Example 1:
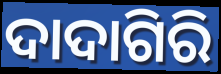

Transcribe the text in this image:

ଦାଦାଗିରି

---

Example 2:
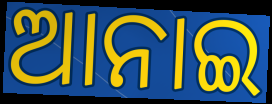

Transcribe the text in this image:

ଆନାଇ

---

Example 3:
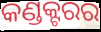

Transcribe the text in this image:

କଣ୍ଡକ୍ଟରର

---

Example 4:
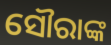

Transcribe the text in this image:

ସୌରାଙ୍କ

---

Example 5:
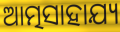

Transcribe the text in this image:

ଆତ୍ମସାହାଯ୍ୟ